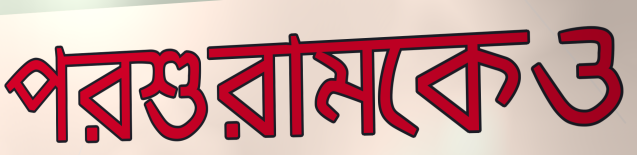
পরশুরামকেও